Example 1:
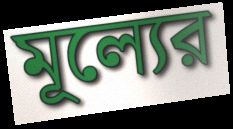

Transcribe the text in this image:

মূল্যের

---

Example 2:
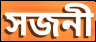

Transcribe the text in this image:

সজনী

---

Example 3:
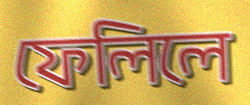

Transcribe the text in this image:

ফেলিলে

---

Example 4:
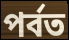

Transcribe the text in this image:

পর্বত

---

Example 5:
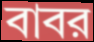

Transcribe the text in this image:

বাবর